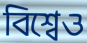
বিশ্বেও